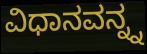
ವಿಧಾನವನ್ನ್ನ